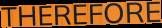
THEREFORE